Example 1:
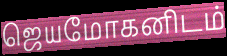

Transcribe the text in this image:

ஜெயமோகனிடம்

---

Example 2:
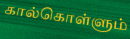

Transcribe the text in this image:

கால்கொள்ளும்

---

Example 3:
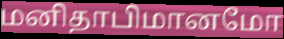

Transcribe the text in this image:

மனிதாபிமானமோ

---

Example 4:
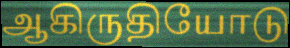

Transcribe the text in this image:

ஆகிருதியோடு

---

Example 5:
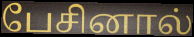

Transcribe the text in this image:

பேசினால்